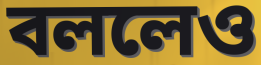
বললেও